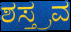
ಶಸ್ತ್ರವ